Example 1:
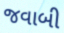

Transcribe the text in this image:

જવાબી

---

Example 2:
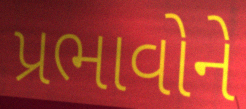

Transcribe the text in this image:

પ્રભાવોને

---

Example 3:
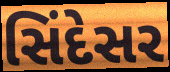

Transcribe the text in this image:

સિંદેસર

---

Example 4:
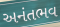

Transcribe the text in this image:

અનંતભવ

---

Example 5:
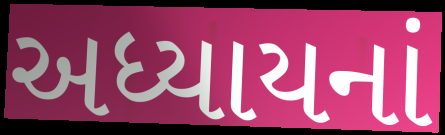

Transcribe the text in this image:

અધ્યાયનાં